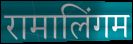
रामालिंगम